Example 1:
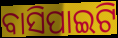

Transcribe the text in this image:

ବାସିପାଇଟି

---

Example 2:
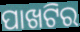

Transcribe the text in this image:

ପାଖଟିର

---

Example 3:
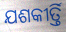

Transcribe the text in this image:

ଯଶକୀର୍ତ୍ତି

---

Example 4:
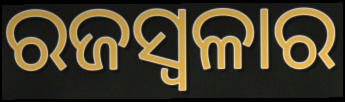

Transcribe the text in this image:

ରଜସ୍ୱଳାର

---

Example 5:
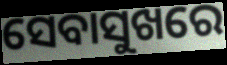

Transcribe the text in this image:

ସେବାସୁଖରେ